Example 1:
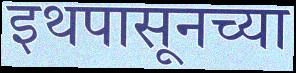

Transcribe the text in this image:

इथपासूनच्या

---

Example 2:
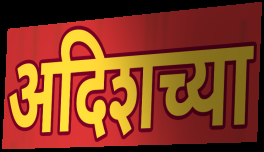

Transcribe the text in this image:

अदिशच्या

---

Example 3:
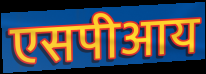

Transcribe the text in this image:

एसपीआय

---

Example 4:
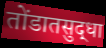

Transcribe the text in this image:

तोंडातसुद्धा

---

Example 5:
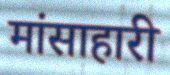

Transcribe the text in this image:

मांसाहारी